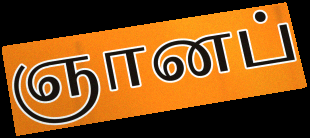
ஞானப்